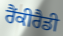
ਰੈਂਕੀਰੈਡੀ